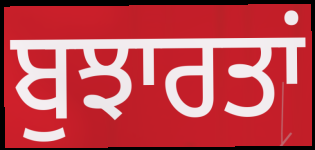
ਬੁਝਾਰਤਾਂ